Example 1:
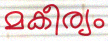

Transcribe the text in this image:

മകീര്യം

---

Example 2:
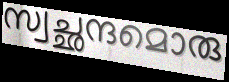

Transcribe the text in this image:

സ്വച്ഛന്ദമൊരു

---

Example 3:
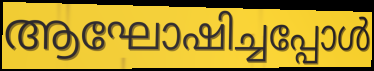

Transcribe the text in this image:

ആഘോഷിച്ചപ്പോൾ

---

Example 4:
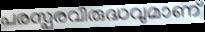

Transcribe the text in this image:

പരസ്പരവിരുദ്ധവുമാണ്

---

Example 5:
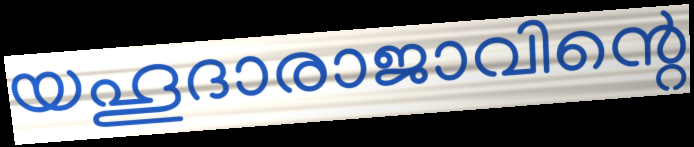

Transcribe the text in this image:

യഹൂദാരാജാവിന്റെ